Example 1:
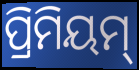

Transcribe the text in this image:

ପ୍ରିମିୟମ୍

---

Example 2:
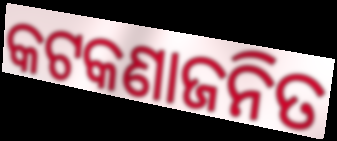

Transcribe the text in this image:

କଟକଣାଜନିତ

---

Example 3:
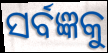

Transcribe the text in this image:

ସର୍ବଜ୍ଞକୁ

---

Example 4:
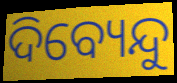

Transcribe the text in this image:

ଦିବ୍ୟେନ୍ଦୁ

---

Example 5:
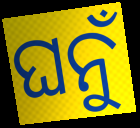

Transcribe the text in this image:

ଘନୁଁ